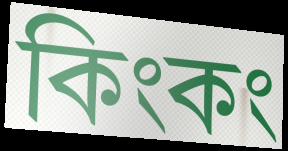
কিংকং